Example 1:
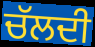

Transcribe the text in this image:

ਚੱਲਦੀ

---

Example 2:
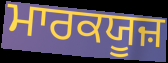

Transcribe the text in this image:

ਮਾਰਕਯੂਜ਼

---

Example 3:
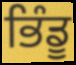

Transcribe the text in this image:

ਭਿੰਡੂ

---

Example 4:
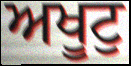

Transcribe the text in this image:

ਅਖੂਟੁ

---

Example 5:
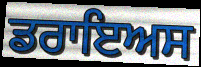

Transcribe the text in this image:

ਡਰਾਇਅਸ